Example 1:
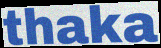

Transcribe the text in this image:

thaka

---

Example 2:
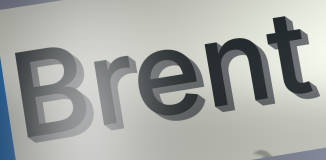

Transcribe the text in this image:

Brent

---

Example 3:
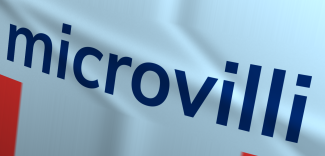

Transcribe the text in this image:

microvilli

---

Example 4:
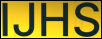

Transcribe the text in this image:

IJHS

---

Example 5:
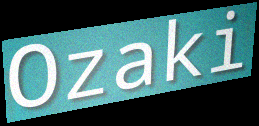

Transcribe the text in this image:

Ozaki